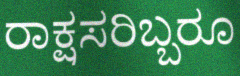
ರಾಕ್ಷಸರಿಬ್ಬರೂ